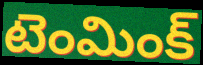
టెంమింక్